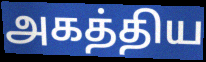
அகத்திய